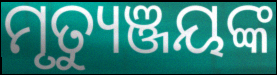
ମୃତ୍ୟୁଞ୍ଜୟଙ୍କ